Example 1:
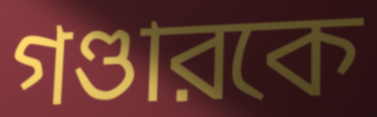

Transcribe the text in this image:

গণ্ডারকে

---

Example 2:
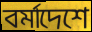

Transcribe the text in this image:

বর্মাদেশে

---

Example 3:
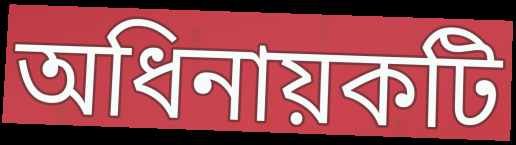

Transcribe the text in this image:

অধিনায়কটি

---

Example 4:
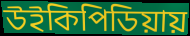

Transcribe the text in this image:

উইকিপিডিয়ায়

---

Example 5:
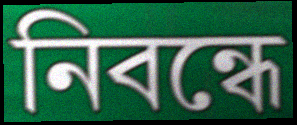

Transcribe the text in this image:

নিবন্ধে